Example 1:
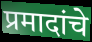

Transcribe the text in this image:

प्रमादांचे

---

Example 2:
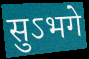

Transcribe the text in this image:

सुऽभगे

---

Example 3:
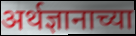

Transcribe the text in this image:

अर्थज्ञानाच्या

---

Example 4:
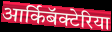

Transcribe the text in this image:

आर्किबॅक्टेरिया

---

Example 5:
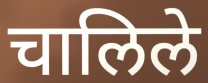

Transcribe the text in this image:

चालिले